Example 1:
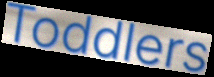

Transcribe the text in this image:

Toddlers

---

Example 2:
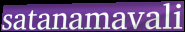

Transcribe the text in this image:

satanamavali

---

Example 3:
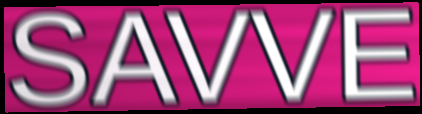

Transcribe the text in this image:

SAVVE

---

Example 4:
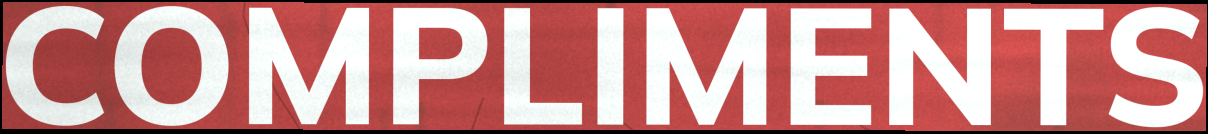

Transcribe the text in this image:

COMPLIMENTS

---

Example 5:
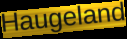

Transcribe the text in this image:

Haugeland